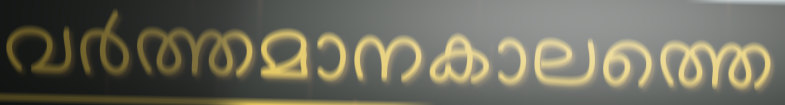
വർത്തമാനകാലത്തെ